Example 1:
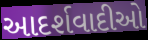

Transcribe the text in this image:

આદર્શવાદીઓ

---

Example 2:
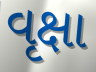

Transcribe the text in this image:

વૃક્ષા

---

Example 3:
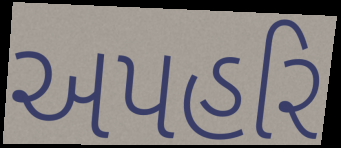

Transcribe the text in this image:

અપહરિ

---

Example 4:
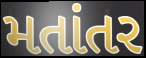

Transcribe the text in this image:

મતાંતર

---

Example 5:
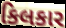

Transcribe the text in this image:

કિલકાર